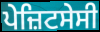
ਪੇਜ਼ਿਟਸੇਸੀ